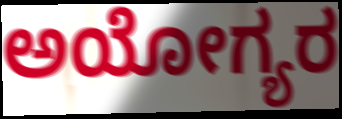
ಅಯೋಗ್ಯರ